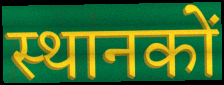
स्थानकों